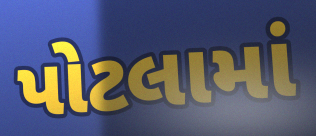
પોટલામાં